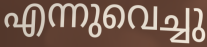
എന്നുവെച്ചു